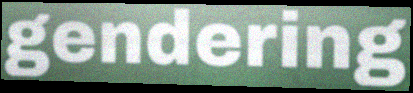
gendering